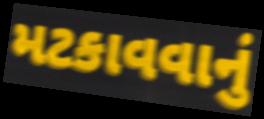
મટકાવવાનું